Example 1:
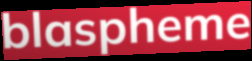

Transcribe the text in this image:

blaspheme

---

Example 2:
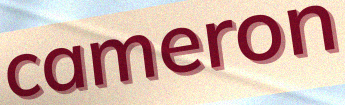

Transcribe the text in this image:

cameron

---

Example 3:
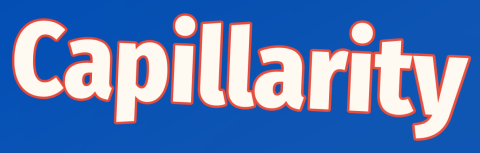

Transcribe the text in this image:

Capillarity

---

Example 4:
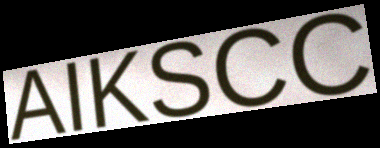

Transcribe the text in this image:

AIKSCC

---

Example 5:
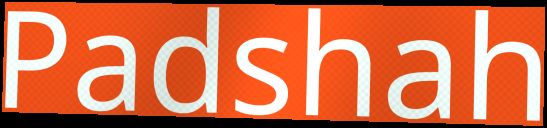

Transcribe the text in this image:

Padshah